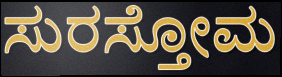
ಸುರಸ್ತೋಮ